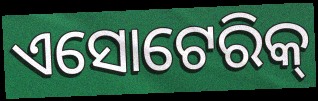
ଏସୋଟେରିକ୍